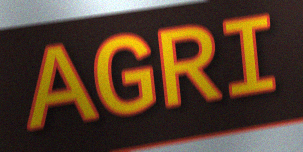
AGRI